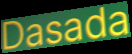
Dasada